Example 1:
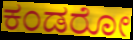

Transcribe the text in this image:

ಕಂಡರೋ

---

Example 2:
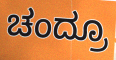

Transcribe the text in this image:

ಚಂದ್ರೂ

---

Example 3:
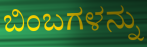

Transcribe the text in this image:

ಬಿಂಬಗಳನ್ನು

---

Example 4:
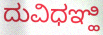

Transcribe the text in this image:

ದುವಿಧಞ್ಹಿ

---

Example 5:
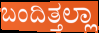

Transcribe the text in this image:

ಬಂದಿತ್ತಲ್ಲಾ